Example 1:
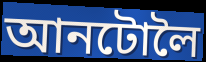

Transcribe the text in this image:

আনটোলৈ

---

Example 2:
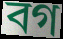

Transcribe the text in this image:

বগ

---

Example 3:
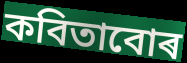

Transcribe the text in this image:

কবিতাবোৰ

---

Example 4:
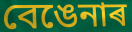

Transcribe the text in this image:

বেঙেনাৰ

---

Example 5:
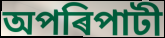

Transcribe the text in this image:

অপৰিপাটী